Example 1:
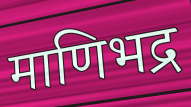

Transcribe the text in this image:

माणिभद्र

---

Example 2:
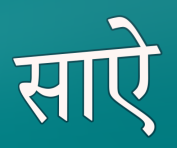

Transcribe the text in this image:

साऐ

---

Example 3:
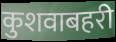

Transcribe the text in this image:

कुशवाबहरी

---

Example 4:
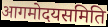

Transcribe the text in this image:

आगमोदयसमिति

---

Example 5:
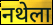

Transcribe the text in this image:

नथेला